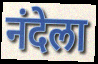
नंदेला